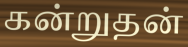
கன்றுதன்